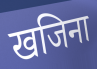
खजिना